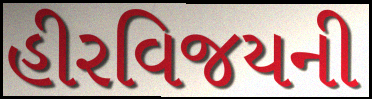
હીરવિજયની